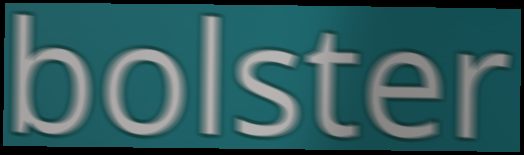
bolster